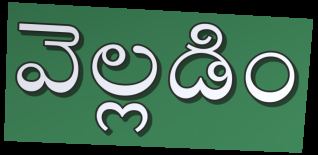
వెల్లడిం